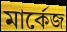
মার্কেজ